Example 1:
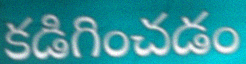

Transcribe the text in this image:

కడిగించడం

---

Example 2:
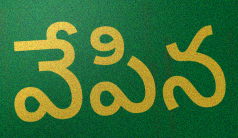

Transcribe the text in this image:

వేపిన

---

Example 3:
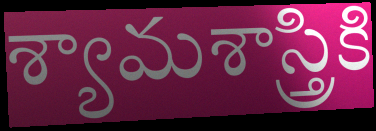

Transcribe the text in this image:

శ్యామశాస్త్రికి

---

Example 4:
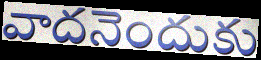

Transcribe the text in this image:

వాదనెందుకు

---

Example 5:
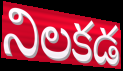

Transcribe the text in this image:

నిలకడ